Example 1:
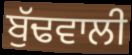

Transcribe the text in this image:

ਬੁੱਢਵਾਲੀ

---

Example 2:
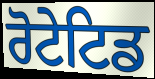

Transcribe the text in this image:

ਰੋਟੇਟਿਡ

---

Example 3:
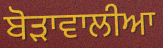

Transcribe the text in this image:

ਬੋੜਾਵਾਲੀਆ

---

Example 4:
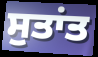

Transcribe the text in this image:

ਸੁਤਾਂਤ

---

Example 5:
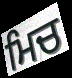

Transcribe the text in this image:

ਮਿਚ